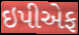
ઇપીએફ